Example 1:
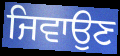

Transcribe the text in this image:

ਜਿਵਾਉਣ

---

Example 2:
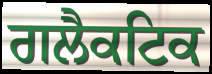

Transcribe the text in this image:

ਗਲੈਕਟਿਕ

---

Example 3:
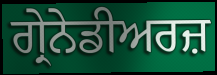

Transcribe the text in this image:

ਗ੍ਰੇਨੇਡੀਅਰਜ਼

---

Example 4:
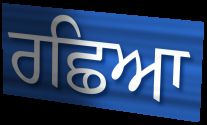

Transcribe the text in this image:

ਰਛਿਆ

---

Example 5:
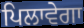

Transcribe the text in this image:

ਪਿਲਾਵੇਗਾ